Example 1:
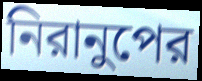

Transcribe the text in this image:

নিরানুপের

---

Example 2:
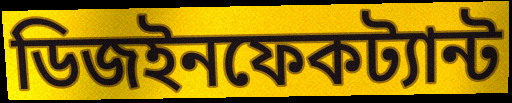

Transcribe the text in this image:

ডিজইনফেকট্যান্ট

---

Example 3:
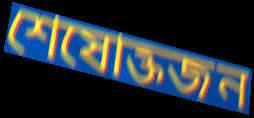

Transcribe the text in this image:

শেষোক্তজন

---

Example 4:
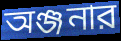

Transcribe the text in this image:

অঞ্জনার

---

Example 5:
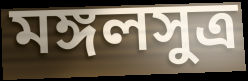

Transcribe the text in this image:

মঙ্গলসুত্র